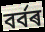
বৰ্বৰ